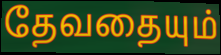
தேவதையும்